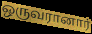
ஒருவரானார்